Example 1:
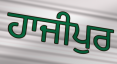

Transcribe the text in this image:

ਹਾਜੀਪੁਰ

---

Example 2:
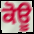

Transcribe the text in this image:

ਕੋਊ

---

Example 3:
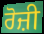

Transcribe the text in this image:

ਰੋਜ਼ੀ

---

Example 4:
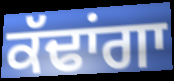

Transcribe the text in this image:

ਕੱਢਾਂਗਾ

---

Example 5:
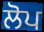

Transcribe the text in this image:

ਲੋਪ